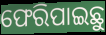
ଫେରିପାଇଛୁ